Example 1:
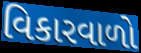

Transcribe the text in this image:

વિકારવાળો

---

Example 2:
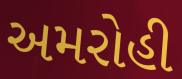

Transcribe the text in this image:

અમરોહી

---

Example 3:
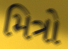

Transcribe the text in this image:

મિત્રો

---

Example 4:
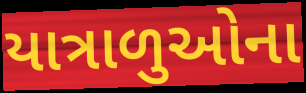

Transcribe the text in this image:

યાત્રાળુઓના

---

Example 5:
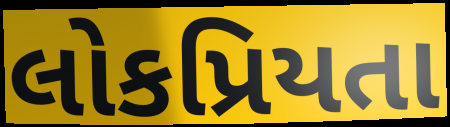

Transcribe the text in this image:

લોકપ્રિયતા